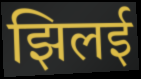
झिलई